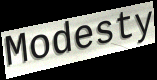
Modesty